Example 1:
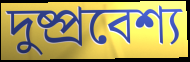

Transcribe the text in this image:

দুষ্প্রবেশ্য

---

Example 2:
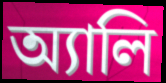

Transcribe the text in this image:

অ্যালি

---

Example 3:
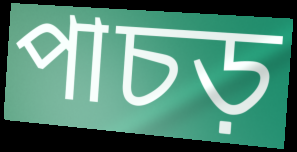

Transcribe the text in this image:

পাচড়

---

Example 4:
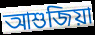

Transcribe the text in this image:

আশুজিয়া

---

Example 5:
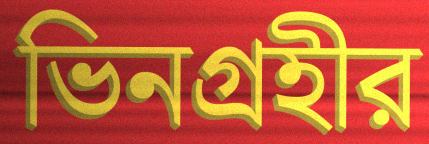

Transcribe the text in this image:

ভিনগ্রহীর